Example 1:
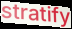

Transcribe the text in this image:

stratify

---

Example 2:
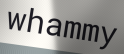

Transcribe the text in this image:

whammy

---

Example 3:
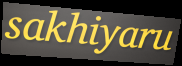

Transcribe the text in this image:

sakhiyaru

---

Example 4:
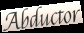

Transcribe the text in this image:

Abductor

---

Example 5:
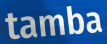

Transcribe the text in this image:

tamba